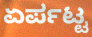
ಏರ್ಪಟ್ಟ